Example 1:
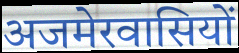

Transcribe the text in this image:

अजमेरवासियों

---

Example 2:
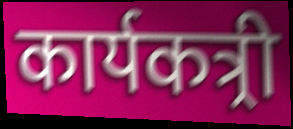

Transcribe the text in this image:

कार्यकत्र्री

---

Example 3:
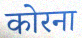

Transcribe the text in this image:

कोरना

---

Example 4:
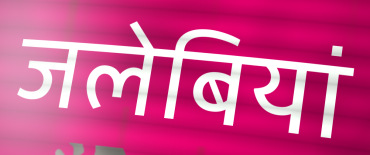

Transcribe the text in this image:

जलेबियां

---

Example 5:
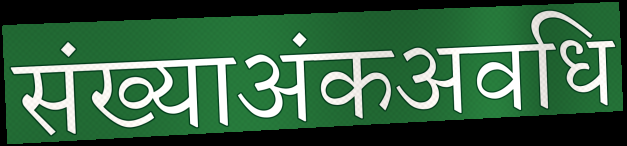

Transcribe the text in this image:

संख्याअंकअवधि